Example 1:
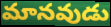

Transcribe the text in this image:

మానవుడు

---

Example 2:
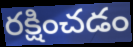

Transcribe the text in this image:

రక్షించడం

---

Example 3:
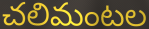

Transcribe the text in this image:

చలిమంటల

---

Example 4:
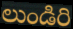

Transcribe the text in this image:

లుండిరి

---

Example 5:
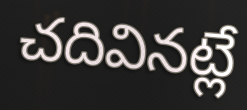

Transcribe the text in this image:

చదివినట్లే